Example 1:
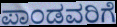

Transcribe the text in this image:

ಪಾಂಡವರಿಗೆ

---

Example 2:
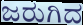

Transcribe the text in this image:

ಜರುಗಿದ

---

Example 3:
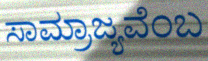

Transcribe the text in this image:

ಸಾಮ್ರಾಜ್ಯವೆಂಬ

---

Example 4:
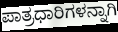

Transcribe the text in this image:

ಪಾತ್ರಧಾರಿಗಳನ್ನಾಗಿ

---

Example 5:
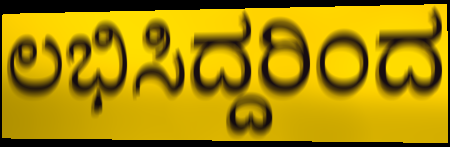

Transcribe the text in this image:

ಲಭಿಸಿದ್ದರಿಂದ